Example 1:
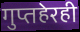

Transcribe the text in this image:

गुप्तहेरही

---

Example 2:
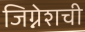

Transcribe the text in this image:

जिग्नेशची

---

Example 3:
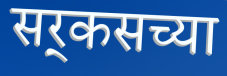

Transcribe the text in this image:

सर्कसच्या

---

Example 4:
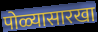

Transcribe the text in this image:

पोळ्यासारखा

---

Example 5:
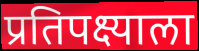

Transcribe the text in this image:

प्रतिपक्ष्याला